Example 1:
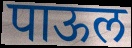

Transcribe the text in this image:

पाऊल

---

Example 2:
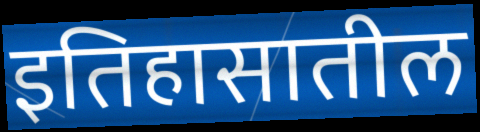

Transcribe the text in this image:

इतिहासातील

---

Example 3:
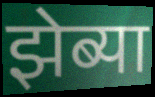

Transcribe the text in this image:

झेब्या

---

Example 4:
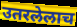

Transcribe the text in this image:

उतरलेलाच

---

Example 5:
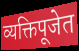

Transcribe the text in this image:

व्यक्तिपूजेत